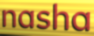
nasha